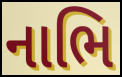
નાભિ